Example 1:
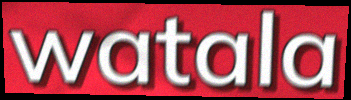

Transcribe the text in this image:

watala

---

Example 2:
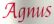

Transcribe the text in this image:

Agnus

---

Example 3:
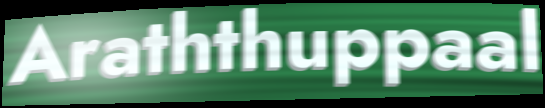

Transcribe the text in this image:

Araththuppaal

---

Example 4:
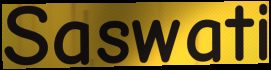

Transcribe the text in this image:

Saswati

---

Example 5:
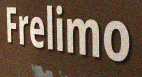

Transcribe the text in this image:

Frelimo